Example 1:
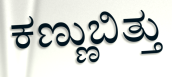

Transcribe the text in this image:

ಕಣ್ಣುಬಿತ್ತು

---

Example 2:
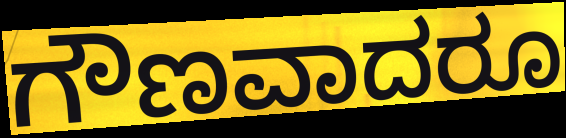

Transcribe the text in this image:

ಗೌಣವಾದರೂ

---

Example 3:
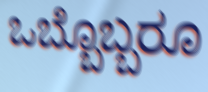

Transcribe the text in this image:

ಒಬ್ಬೊಬ್ಬರೂ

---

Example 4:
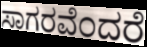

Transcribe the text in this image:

ಸಾಗರವೆಂದರೆ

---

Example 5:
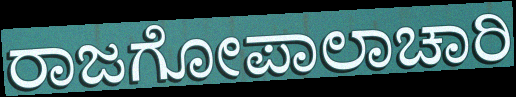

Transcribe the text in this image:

ರಾಜಗೋಪಾಲಾಚಾರಿ